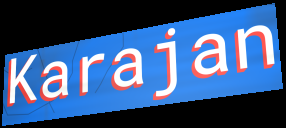
Karajan